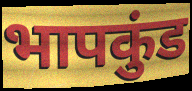
भापकुंड